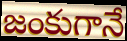
జంకుగానే